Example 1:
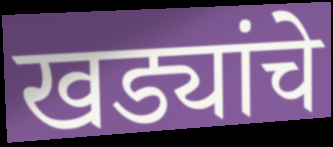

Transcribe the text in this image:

खड्यांचे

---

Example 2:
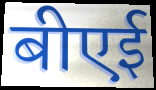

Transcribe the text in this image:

बीएई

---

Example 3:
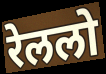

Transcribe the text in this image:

रेललो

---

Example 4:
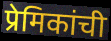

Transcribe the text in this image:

प्रेमिकांची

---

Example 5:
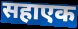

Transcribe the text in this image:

सहाएक